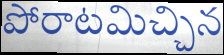
పోరాటమిచ్చిన